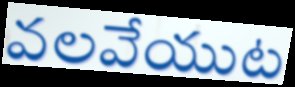
వలవేయుట